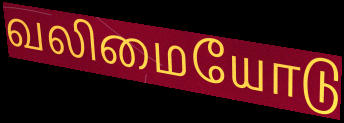
வலிமையோடு